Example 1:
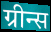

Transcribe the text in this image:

ग्रीन्स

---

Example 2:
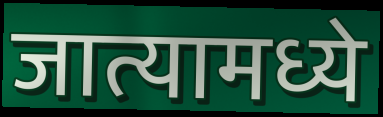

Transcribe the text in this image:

जात्यामध्ये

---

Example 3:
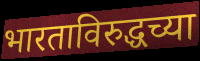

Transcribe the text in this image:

भारताविरुद्धच्या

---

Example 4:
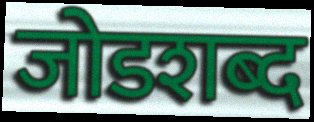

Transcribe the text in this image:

जोडशब्द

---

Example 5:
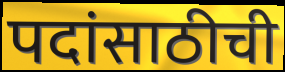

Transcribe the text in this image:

पदांसाठीची